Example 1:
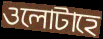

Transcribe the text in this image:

ওলোটাহে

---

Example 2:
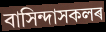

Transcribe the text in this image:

বাসিন্দাসকলৰ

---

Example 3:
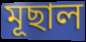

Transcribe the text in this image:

মূছাল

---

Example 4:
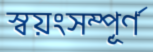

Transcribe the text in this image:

স্বয়ংসম্পূৰ্ণ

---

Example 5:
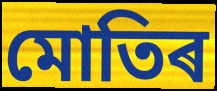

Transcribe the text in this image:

মোতিৰ